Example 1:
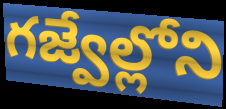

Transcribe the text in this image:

గజ్వేల్లోని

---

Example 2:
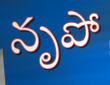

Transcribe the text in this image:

నృపో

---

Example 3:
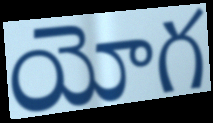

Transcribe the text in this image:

యోగ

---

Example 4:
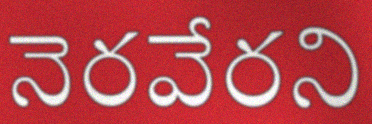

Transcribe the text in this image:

నెరవేరని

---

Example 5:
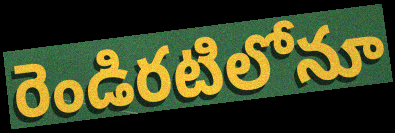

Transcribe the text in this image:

రెండిరటిలోనూ